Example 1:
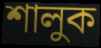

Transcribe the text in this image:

শালুক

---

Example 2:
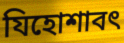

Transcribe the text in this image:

যিহোশাবৎ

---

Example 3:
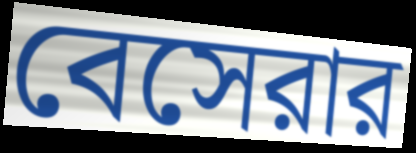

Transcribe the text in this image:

বেসেরার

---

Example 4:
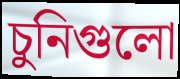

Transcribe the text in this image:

চুনিগুলো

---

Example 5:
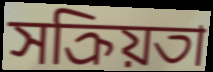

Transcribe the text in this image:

সক্রিয়তা